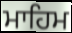
ਮਾਹਿਮ